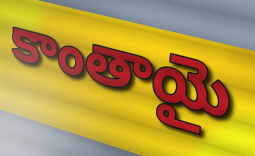
కాంతాయై